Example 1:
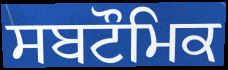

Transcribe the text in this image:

ਸਬਟੌਮਿਕ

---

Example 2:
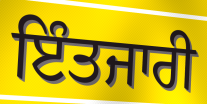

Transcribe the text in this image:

ਇੰਤਜਾਰੀ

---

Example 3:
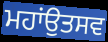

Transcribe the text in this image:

ਮਹਾਂਉਤਸਵ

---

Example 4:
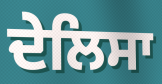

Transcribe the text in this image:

ਦੇਲਿਸਾ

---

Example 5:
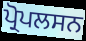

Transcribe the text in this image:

ਪ੍ਰੋਪਲਸਨ